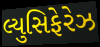
લ્યુસિફેરેઝ